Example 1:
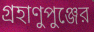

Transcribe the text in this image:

গ্রহাণুপুঞ্জের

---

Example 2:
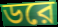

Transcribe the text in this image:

ডরে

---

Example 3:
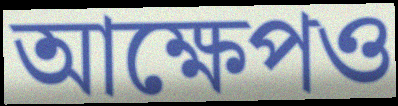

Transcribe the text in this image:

আক্ষেপও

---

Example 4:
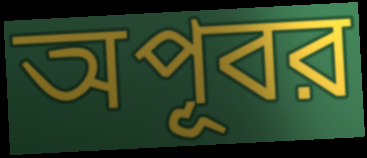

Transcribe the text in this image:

অপূবর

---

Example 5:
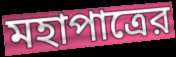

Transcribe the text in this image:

মহাপাত্রের